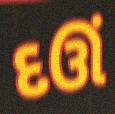
દઊં